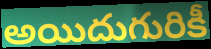
అయిదుగురికీ